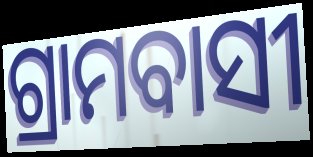
ଗ୍ରାମବାସୀ